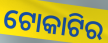
ଟୋକାଟିର